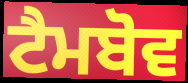
ਟੈਮਬੋਵ